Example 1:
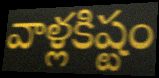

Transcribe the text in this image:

వాళ్లకిష్టం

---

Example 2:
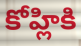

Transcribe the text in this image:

కోహ్లికి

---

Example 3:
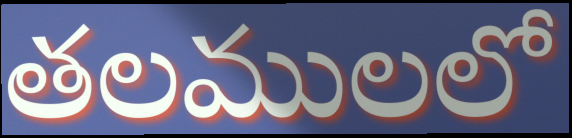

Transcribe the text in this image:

తలములలో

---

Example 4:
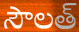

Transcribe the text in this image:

సౌలత్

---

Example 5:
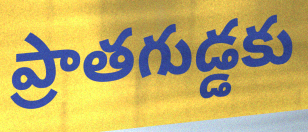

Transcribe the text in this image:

ప్రాతగుడ్డకు